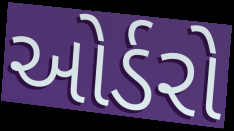
ઓર્ડરો